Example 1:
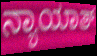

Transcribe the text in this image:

ನ್ಯಾಯಾತ್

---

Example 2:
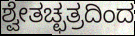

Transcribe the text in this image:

ಶ್ವೇತಚ್ಛತ್ರದಿಂದ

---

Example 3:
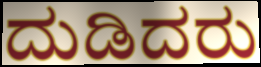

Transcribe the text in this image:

ದುಡಿದರು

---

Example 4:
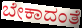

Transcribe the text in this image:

ಬೇಕಾದಂತೆ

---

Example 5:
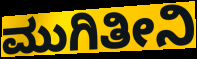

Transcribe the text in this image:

ಮುಗಿತೀನಿ